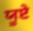
ਯੂਏ